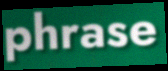
phrase